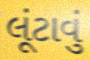
લૂંટાવું